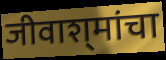
जीवाश्मांचा